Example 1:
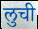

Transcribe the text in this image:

लुची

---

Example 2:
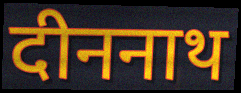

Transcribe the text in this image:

दीननाथ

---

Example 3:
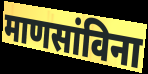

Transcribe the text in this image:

माणसांविना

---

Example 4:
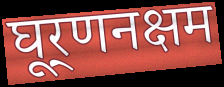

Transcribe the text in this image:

घूर्णनक्षम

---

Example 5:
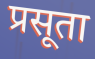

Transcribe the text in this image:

प्रसूता